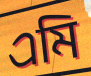
এমি